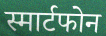
स्‍मार्टफोन